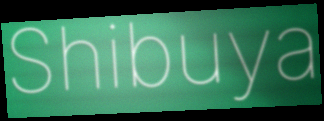
Shibuya